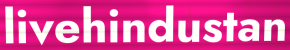
livehindustan